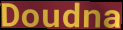
Doudna